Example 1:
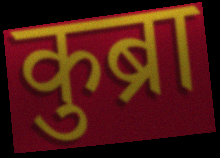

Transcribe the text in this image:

कुब्रा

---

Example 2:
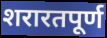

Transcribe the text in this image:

शरारतपूर्ण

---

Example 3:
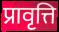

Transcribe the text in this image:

प्रावृत्ति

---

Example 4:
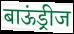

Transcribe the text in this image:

बाऊंड्रीज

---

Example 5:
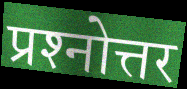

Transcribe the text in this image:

प्रश्‍नोत्तर